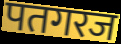
पतगरज